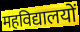
महविद्यालयों